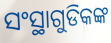
ସଂସ୍ଥାଗୁଡିକଙ୍କ